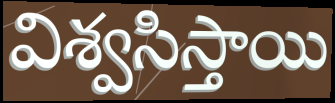
విశ్వసిస్తాయి